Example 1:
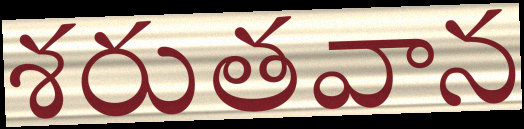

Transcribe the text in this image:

శరుతవాన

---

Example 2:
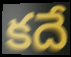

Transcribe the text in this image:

కదే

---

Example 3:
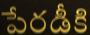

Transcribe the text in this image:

పేరడీకి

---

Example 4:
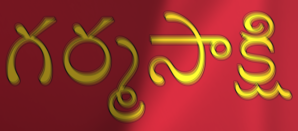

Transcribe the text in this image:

గర్మసాక్షి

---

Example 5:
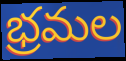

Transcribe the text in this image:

భ్రమల